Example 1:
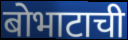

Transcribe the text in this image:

बोभाटाची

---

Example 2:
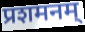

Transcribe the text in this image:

प्रशमनम्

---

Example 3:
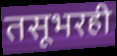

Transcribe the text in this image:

तसूभरही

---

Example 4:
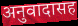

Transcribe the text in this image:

अनुवादासह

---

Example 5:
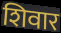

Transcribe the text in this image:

शिवार